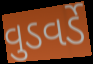
વુડવર્ડે